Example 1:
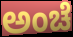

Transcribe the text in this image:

ಅಂಚೆ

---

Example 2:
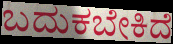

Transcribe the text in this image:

ಬದುಕಬೇಕಿದೆ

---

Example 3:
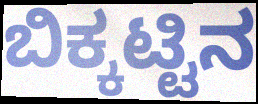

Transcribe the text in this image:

ಬಿಕ್ಕಟ್ಟಿನ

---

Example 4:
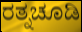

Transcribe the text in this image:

ರತ್ನಚೂಡಿ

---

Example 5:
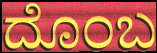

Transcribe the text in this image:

ದೊಂಬ